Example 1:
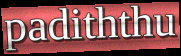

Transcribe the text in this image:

padiththu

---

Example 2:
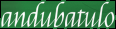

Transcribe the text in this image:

andubatulo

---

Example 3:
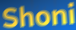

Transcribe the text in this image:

Shoni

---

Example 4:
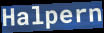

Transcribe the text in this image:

Halpern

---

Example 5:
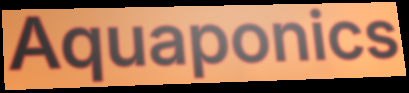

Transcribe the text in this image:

Aquaponics